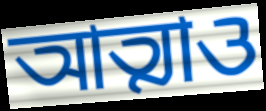
আত্মাও